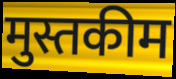
मुस्तकीम